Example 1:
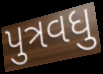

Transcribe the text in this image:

પુત્રવધુ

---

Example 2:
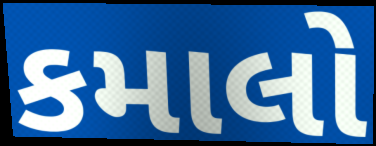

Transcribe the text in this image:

કમાલો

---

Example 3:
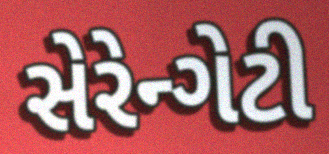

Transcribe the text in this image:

સેરેન્ગેટી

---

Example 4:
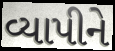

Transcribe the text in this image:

વ્યાપીને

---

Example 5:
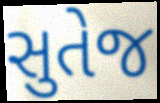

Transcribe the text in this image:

સુતેજ